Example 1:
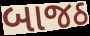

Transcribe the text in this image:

બાજઠ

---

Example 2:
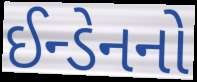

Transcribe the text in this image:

ઈન્ડેનનો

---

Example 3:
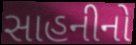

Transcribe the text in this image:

સાહનીનો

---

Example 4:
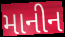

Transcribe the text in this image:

માનીન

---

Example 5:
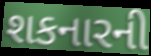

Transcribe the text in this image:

શકનારની